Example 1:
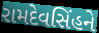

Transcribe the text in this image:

રામદેવસિંહને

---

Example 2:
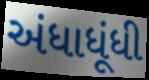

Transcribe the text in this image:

અંધાધૂંધી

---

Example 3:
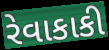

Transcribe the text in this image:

રેવાકાકી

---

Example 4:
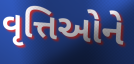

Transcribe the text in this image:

વૃત્તિઓને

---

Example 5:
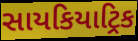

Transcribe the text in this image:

સાયકિયાટ્રિક